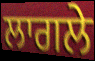
ਲਾਗਲੇ